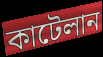
কাটেলান